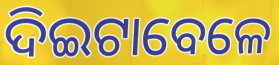
ଦିଇଟାବେଳେ